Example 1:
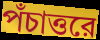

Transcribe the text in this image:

পঁচাত্তরে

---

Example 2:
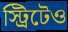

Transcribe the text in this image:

স্ট্রিটেও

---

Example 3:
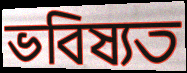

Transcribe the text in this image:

ভবিষ্যত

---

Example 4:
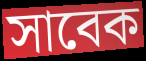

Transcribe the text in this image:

সাবেক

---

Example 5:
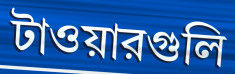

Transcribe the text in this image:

টাওয়ারগুলি